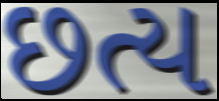
છત્ય